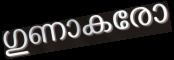
ഗുണാകരോ